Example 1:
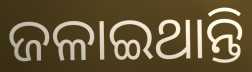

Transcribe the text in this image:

ଜଳାଇଥାନ୍ତି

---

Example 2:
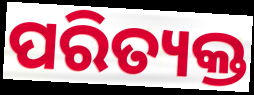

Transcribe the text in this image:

ପରିତ୍ୟକ୍ତ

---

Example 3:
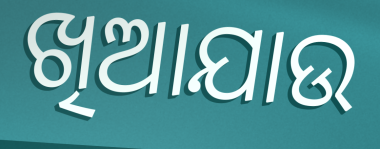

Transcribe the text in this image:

ଖିଆଯାଉ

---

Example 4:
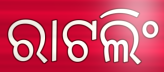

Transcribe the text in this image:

ରାଟଲିଂ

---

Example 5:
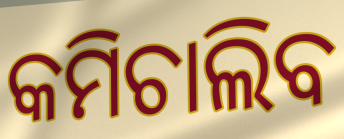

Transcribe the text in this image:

କମିଚାଲିବ